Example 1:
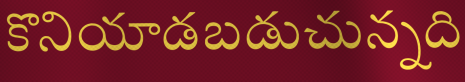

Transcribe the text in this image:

కొనియాడబడుచున్నది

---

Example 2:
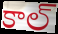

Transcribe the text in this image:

కాల్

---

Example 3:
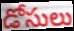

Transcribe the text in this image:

డోసులు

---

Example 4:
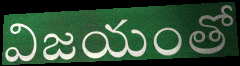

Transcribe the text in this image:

విజయంతో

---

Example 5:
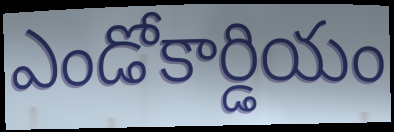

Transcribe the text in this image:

ఎండోకార్డియం